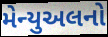
મેન્યુઅલનો